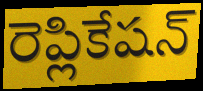
రెప్లికేషన్